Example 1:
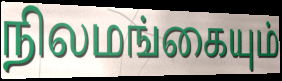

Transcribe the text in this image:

நிலமங்கையும்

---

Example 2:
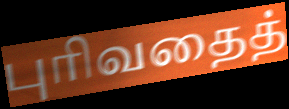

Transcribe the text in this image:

புரிவதைத்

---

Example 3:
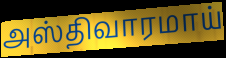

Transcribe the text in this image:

அஸ்திவாரமாய்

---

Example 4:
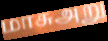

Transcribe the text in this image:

மாசுஅறு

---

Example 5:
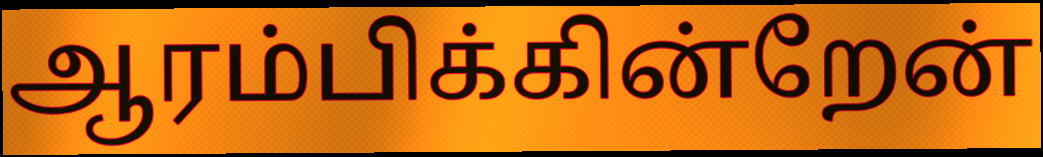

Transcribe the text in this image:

ஆரம்பிக்கின்றேன்